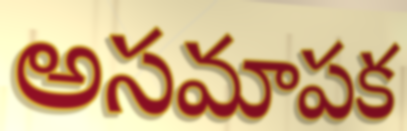
అసమాపక